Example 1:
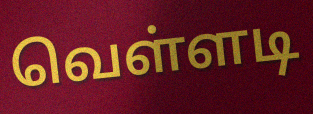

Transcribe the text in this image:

வெள்ளடி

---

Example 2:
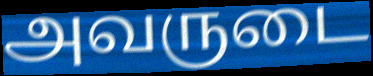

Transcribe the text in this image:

அவருடை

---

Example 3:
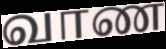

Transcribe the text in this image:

வாண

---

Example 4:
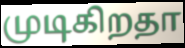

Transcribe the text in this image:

முடிகிறதா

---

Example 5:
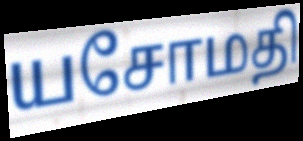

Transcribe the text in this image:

யசோமதி